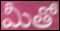
మీతో